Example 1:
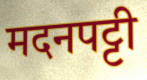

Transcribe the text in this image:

मदनपट्टी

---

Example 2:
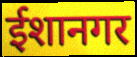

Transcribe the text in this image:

ईशानगर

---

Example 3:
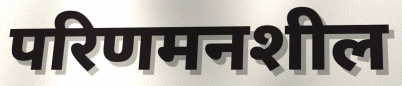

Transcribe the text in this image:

परिणमनशील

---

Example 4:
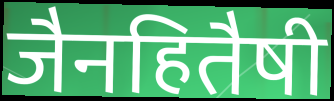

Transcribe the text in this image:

जैनहितैषी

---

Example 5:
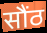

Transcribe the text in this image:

सौंठ